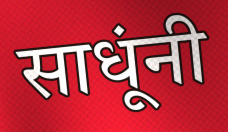
साधूंनी